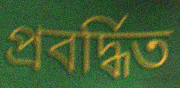
প্রবর্দ্ধিত